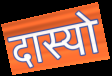
दास्यो